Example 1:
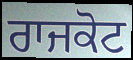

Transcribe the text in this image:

ਰਾਜਕੋਟ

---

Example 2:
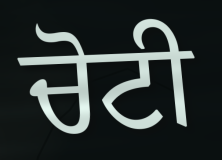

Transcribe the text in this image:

ਚੋਟੀ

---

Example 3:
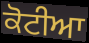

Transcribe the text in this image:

ਕੋਟੀਆ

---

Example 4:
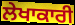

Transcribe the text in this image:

ਲੇਖਾਕਾਰੀ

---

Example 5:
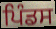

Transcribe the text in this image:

ਪਿੰਡਸ